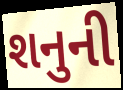
શનુની